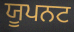
ਯੂਪਨਟ